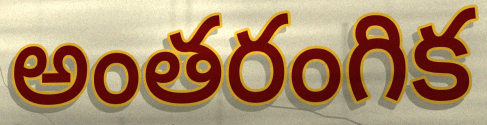
అంతరంగిక